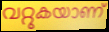
വറ്റുകയാണ്